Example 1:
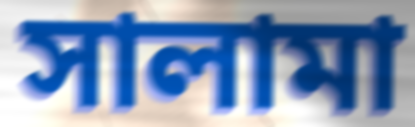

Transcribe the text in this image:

সালামা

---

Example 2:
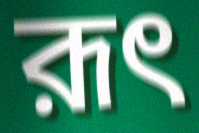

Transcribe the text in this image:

রূৎ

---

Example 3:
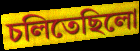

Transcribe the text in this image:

চলিতেছিলো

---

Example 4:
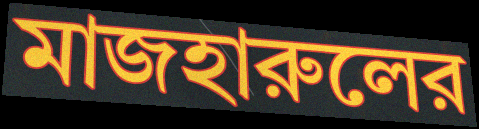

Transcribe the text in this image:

মাজহারুলের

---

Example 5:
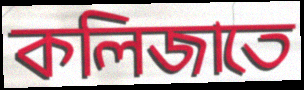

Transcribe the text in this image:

কলিজাতে